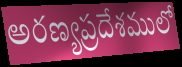
అరణ్యప్రదేశములో